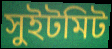
সুইটমিট